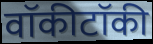
वॉकीटॉकी